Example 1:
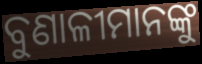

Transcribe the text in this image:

ବୁଣାଳୀମାନଙ୍କୁ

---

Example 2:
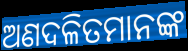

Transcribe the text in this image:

ଅଣଦଳିତମାନଙ୍କ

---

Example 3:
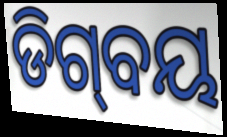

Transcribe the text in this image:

ଡିଗ୍‌ବୟ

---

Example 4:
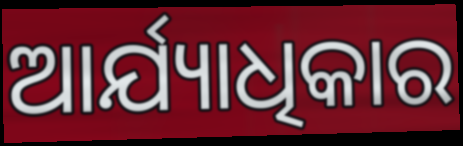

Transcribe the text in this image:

ଆର୍ଯ୍ୟାଧିକାର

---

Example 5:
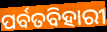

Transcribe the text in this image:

ପର୍ବତବିହାରୀ